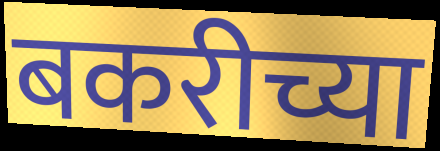
बकरीच्या